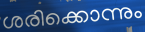
ശരിക്കൊന്നും